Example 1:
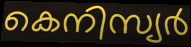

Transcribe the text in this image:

കെനിസ്യർ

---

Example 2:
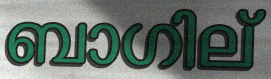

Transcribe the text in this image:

ബാഗില്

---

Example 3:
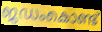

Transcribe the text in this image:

ജഡംകൊണ്ട്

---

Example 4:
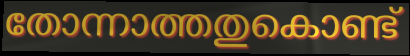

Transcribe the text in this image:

തോന്നാത്തതുകൊണ്ട്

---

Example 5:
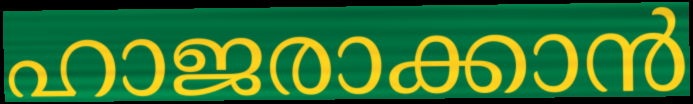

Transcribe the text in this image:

ഹാജരാക്കാൻ